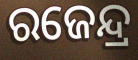
ରଜେନ୍ଦ୍ର